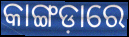
କାଙ୍ଗଡ଼ାରେ